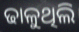
ଢାଳୁଥିଲି